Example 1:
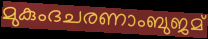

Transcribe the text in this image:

മുകുംദചരണാംബുജമ്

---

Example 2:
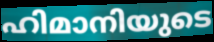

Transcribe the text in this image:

ഹിമാനിയുടെ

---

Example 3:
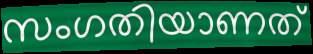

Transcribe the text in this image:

സംഗതിയാണത്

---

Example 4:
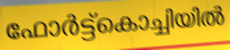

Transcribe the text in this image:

ഫോർട്ട്കൊച്ചിയിൽ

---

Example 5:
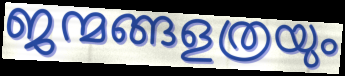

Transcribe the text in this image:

ജന്മങ്ങളത്രയും